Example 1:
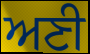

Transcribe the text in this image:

ਅਣੀ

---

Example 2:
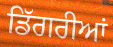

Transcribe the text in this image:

ਡਿੱਗਰੀਆਂ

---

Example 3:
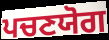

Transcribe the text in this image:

ਪਚਣਯੋਗ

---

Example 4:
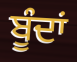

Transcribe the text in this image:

ਬੂੰਦਾਂ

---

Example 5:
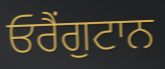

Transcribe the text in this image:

ਓਰੈਂਗੁਟਾਨ